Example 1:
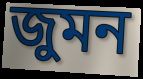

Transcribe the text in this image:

জুমন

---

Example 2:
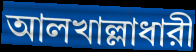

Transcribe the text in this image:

আলখাল্লাধারী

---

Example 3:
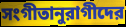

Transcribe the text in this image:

সংগীতানুরাগীদের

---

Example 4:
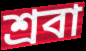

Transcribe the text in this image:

শ্রবা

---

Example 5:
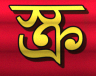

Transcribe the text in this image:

স্ক্র